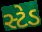
સ્ટેડ